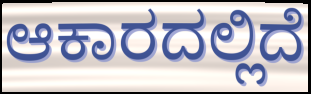
ಆಕಾರದಲ್ಲಿದೆ